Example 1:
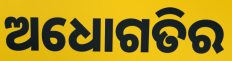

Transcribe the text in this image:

ଅଧୋଗତିର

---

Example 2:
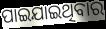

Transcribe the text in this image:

ପାଇଯାଇଥିବାର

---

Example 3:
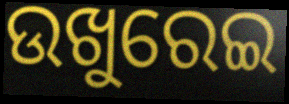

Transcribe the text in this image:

ଉଖୁରେଇ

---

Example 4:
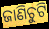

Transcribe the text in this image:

ଜାଣିଚୁଟି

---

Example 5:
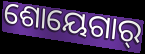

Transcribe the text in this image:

ଶୋୟେଗାର୍